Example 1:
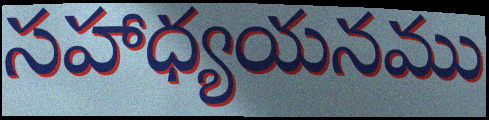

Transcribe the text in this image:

సహాధ్యయనము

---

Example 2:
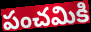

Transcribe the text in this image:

పంచమికి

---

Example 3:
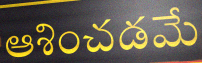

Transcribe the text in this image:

ఆశించడమే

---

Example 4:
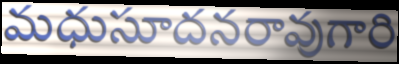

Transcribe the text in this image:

మధుసూదనరావుగారి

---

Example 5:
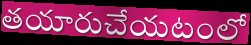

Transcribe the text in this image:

తయారుచేయటంలో